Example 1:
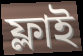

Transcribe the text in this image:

ফ্লাই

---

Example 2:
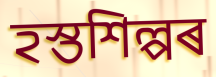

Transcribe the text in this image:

হস্তশিল্পৰ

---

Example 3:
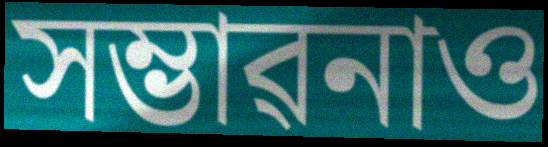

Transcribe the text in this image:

সম্ভাৱনাও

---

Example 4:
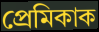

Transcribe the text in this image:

প্ৰেমিকাক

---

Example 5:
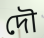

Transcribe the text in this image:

দৌ